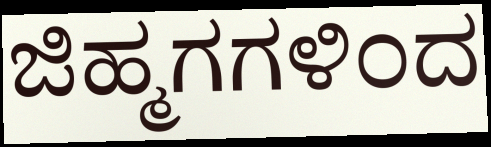
ಜಿಹ್ಮಗಗಳಿಂದ